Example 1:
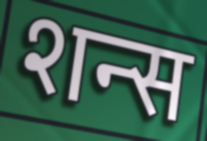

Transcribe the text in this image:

शन्स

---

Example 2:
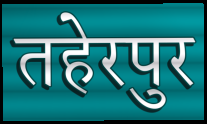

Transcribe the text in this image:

तहेरपुर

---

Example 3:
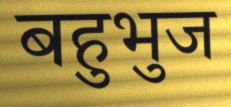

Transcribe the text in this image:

बहुभुज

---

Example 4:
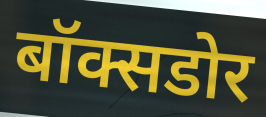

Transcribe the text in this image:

बॉक्सडोर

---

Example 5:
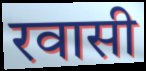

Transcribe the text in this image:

रवासी